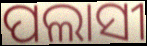
ପଲାସୀ